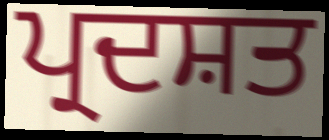
ਪ੍ਰਦਸ਼ਤ